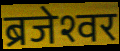
ब्रजेश्वर